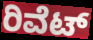
ರಿವೆಟ್